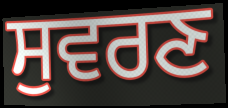
ਸੁਵਰਣ